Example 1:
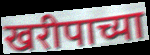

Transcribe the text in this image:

खरीपाच्या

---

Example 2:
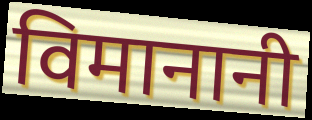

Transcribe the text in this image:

विमानानी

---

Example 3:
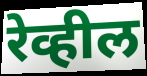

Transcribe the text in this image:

रेव्हील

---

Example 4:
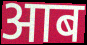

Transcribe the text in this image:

आब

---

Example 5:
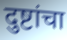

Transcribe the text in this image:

दुष्टांचा